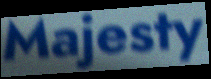
Majesty